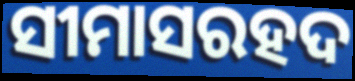
ସୀମାସରହଦ